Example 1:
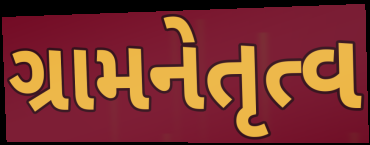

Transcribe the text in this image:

ગ્રામનેતૃત્વ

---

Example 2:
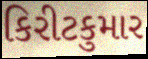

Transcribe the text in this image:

કિરીટકુમાર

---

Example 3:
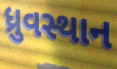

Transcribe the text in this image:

ધ્રુવસ્થાન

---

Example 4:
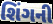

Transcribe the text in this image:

શિંગની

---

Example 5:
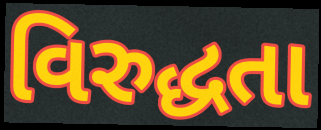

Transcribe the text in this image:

વિરુદ્ધતા